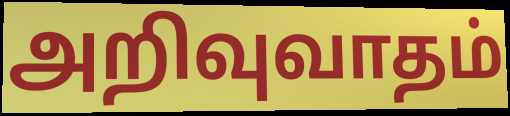
அறிவுவாதம்